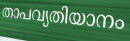
താപവ്യതിയാനം